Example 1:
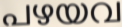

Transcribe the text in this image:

പഴയവ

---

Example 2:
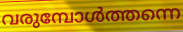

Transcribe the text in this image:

വരുമ്പോൾത്തന്നെ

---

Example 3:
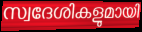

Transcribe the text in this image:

സ്വദേശികളുമായി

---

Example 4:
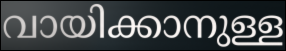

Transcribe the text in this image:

വായിക്കാനുള്ള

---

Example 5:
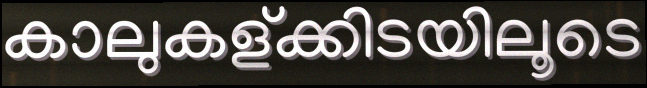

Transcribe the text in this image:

കാലുകള്ക്കിടയിലൂടെ